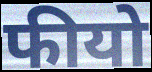
फीयो